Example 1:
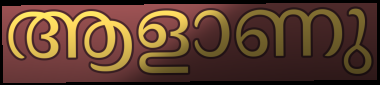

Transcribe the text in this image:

ആളാണു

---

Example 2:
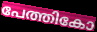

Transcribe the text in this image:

പേത്തികോ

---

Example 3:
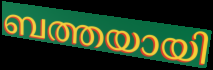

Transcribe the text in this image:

ബത്തയായി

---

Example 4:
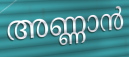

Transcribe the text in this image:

അണ്ണാൻ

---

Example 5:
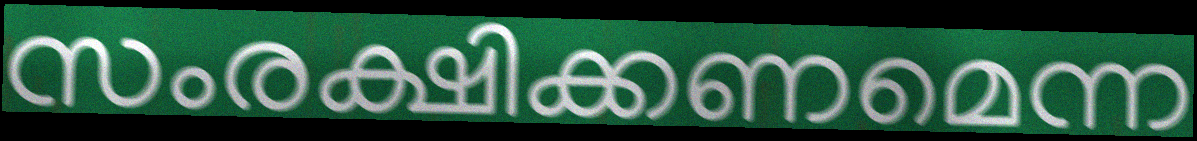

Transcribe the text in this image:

സംരക്ഷിക്കണമെന്ന